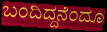
ಬಂದಿದ್ದನೆಂದೂ